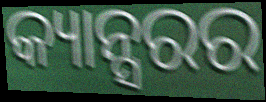
କ୍ୟାନ୍ସରର